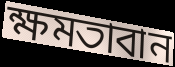
ক্ষমতাবান